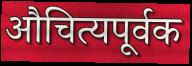
औचित्यपूर्वक